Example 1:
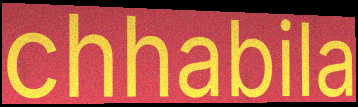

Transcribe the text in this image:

chhabila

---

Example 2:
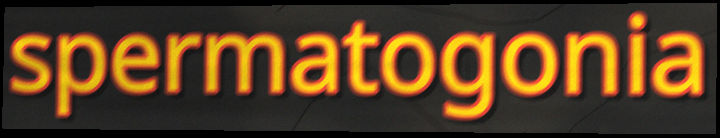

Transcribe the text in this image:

spermatogonia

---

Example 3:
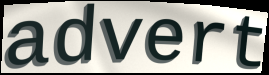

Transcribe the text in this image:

advert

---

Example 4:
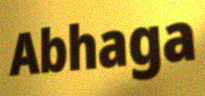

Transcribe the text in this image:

Abhaga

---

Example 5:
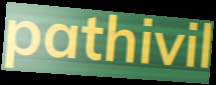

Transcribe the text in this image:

pathivil